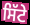
ਸਿੱਟੇ